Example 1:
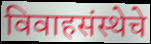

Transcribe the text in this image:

विवाहसंस्थेचे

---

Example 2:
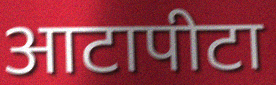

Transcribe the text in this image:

आटापीटा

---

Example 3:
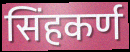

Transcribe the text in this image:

सिंहकर्ण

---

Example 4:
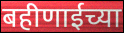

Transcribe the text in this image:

बहीणाईच्या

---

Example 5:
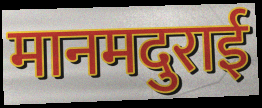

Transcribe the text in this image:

मानमदुराई